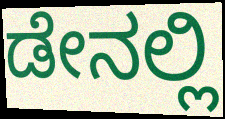
ಡೇನಲ್ಲಿ